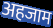
अहजाम